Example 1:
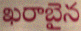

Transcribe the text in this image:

ఖరాబైన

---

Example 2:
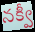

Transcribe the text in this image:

నక్వీ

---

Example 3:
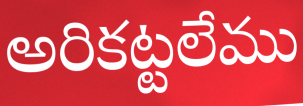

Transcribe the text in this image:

అరికట్టలేము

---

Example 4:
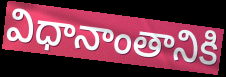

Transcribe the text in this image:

విధానాంతానికి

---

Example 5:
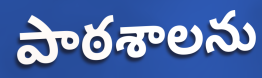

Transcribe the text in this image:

పాఠశాలను